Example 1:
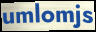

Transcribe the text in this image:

umlomjs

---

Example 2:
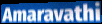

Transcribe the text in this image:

Amaravathi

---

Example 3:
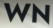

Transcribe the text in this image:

WN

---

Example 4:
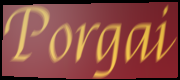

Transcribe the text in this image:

Porgai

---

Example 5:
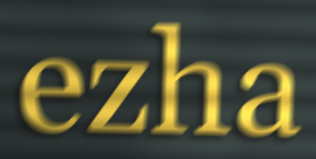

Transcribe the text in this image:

ezha